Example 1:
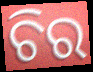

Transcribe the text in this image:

ଚିର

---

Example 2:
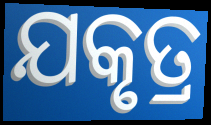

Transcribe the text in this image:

ଯକୃତ୍ର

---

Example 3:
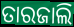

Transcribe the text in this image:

ତାରଜାଲି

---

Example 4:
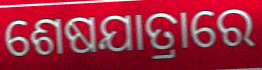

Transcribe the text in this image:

ଶେଷଯାତ୍ରାରେ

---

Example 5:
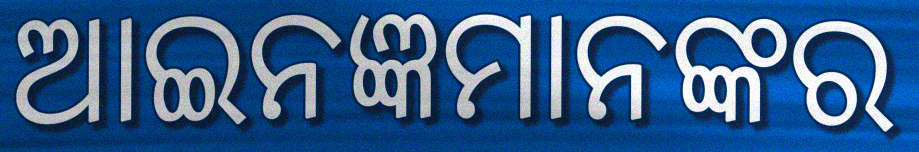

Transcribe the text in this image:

ଆଇନଜ୍ଞମାନଙ୍କର